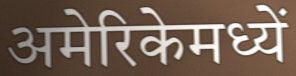
अमेरिकेमध्यें